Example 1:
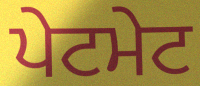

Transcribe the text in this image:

ਪੇਟਮੇਟ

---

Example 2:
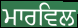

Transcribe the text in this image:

ਮਾਰਵਿਲ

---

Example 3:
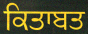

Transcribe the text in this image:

ਕਿਤਾਬਤ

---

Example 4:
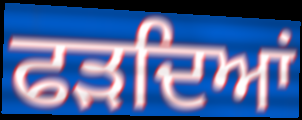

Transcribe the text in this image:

ਫੜਦਿਆਂ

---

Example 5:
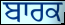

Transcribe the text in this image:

ਬਾਰਕ